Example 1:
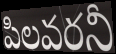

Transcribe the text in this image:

పిలవరనీ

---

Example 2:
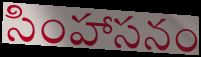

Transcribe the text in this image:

సింహాసనం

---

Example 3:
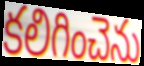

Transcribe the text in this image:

కలిగించెను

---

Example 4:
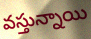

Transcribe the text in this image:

వస్తున్నాయి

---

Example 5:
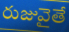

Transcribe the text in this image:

రుజువైతే